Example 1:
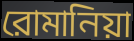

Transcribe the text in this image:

রোমানিয়া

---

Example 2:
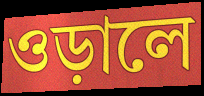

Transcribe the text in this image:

ওড়ালে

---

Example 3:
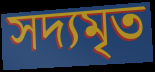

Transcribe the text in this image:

সদ্যমৃত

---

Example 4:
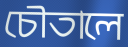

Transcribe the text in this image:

চৌতালে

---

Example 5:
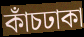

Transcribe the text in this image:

কাঁচঢাকা